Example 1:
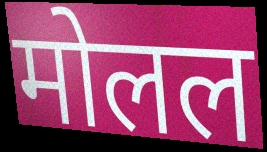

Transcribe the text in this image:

मोलल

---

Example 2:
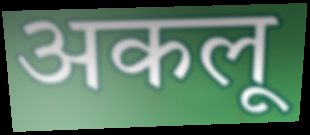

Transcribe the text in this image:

अकलू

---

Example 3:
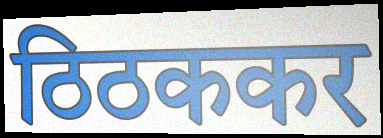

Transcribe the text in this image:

ठिठककर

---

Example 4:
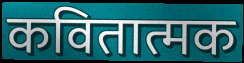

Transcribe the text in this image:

कवितात्मक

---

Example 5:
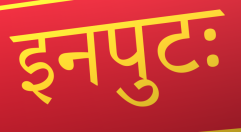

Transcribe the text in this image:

इनपुटः